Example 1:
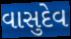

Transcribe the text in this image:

વાસુદેવ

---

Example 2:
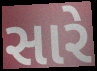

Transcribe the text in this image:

સારે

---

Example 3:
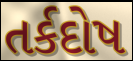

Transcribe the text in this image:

તર્કદોષ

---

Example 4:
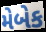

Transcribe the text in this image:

મેબેક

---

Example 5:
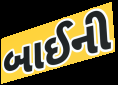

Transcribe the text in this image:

બાઈની